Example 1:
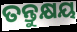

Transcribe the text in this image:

ତନ୍ତୁକ୍ଷୟ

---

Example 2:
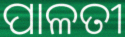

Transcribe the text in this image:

ପାଳତୀ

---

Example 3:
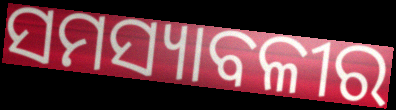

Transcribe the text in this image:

ସମସ୍ୟାବଳୀର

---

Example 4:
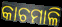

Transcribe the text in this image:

କାଚମାଳି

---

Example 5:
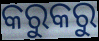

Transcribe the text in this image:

କରୁକରୁ